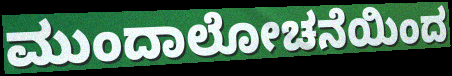
ಮುಂದಾಲೋಚನೆಯಿಂದ